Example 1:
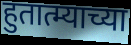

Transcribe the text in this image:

हुतात्म्याच्या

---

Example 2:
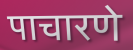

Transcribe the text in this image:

पाचारणे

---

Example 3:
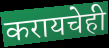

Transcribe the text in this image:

करायचेही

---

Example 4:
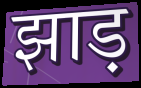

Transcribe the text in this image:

झाड़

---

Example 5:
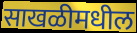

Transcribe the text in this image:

साखळीमधील